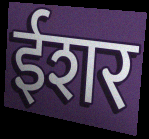
ईशर